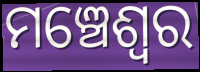
ମଞ୍ଚେଶ୍ଵର